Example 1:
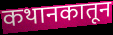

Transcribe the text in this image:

कथानकातून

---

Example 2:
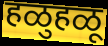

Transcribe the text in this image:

हळुहळू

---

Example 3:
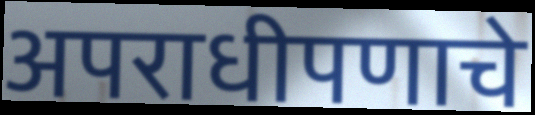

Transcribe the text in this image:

अपराधीपणाचे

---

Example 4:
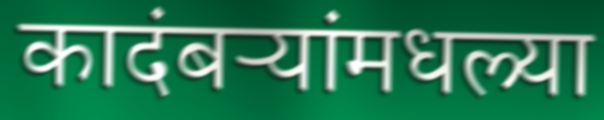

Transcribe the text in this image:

कादंबऱ्यांमधल्या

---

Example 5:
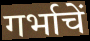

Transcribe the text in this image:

गर्भाचें